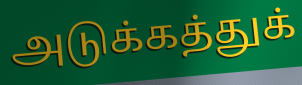
அடுக்கத்துக்